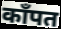
काँपत